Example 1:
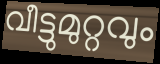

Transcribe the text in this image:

വീട്ടുമുറ്റവും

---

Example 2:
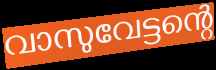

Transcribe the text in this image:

വാസുവേട്ടന്റെ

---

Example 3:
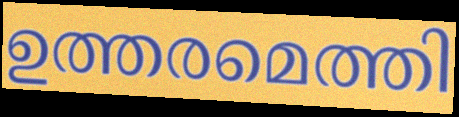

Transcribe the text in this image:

ഉത്തരമെത്തി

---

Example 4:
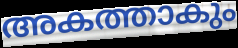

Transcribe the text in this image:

അകത്താകും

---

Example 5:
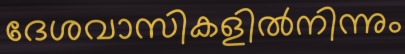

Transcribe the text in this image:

ദേശവാസികളിൽനിന്നും